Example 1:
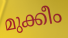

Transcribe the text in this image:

മുക്കീം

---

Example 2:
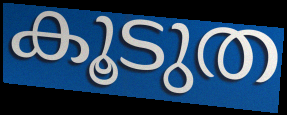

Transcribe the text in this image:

കൂടുത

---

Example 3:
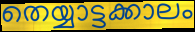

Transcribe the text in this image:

തെയ്യാട്ടക്കാലം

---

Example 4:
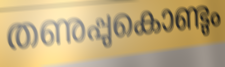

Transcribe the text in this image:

തണുപ്പുകൊണ്ടും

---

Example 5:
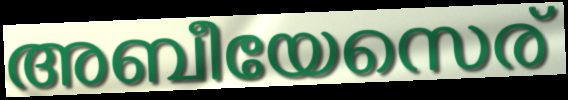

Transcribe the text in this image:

അബീയേസെര്